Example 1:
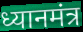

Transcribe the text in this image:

ध्यानमंत्र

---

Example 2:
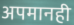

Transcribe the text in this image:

अपमानही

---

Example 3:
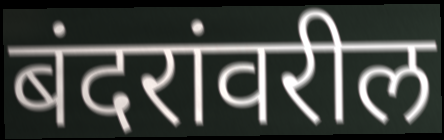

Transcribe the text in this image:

बंदरांवरील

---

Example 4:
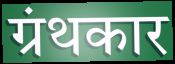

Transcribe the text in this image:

ग्रंथकार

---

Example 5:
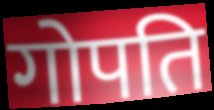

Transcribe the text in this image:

गोपति